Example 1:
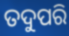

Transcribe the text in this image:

ତଦୁପରି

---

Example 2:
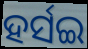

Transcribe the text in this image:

ହର୍ସଇ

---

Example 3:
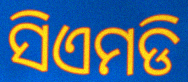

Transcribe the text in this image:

ସିଏମଡି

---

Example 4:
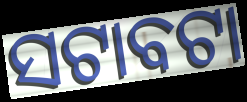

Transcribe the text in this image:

ସଟାବଟା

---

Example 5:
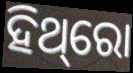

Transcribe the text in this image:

ହିଥ୍‌ରୋ